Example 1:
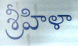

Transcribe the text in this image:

శ్రీహిళా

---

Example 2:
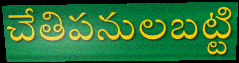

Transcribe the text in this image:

చేతిపనులబట్టి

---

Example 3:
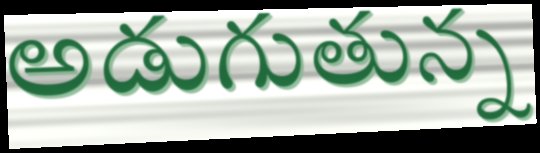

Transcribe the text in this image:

అడుగుతున్న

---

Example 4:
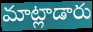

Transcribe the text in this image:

మాట్లాడారు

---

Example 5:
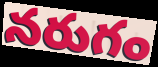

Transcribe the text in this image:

నరుగం